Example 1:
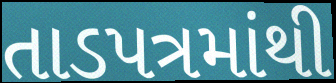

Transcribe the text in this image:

તાડપત્રમાંથી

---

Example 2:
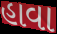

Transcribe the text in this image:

હાવા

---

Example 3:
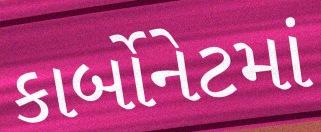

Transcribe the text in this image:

કાર્બોનેટમાં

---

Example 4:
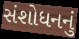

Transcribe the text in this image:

સંશોધનનું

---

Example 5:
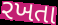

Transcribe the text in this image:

રખતા